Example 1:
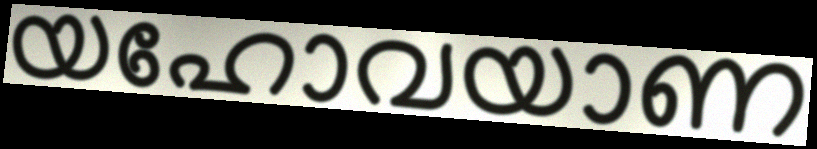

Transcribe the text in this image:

യഹോവയാണ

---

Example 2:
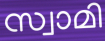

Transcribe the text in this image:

സ്വാമി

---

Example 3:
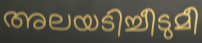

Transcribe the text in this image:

അലയടിച്ചീടുമീ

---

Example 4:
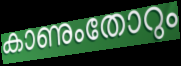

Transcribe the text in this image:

കാണുംതോറും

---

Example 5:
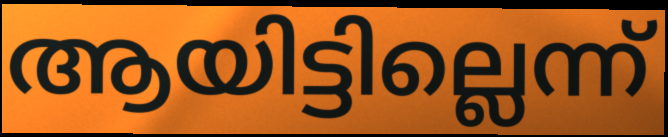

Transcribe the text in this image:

ആയിട്ടില്ലെന്ന്